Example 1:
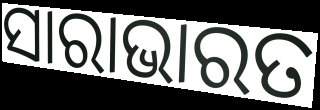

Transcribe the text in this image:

ସାରାଭାରତ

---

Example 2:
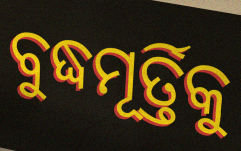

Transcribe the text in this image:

ବୁଦ୍ଧମୂର୍ତ୍ତିକୁ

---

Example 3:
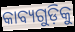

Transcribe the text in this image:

କାବ୍ୟଗୁଡ଼ିକୁ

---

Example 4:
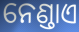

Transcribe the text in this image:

ନେଣ୍ଡାଏ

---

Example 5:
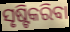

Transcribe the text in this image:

ସୃଷ୍ଟିକରିବା